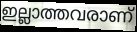
ഇല്ലാത്തവരാണ്